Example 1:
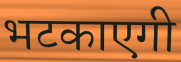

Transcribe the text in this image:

भटकाएगी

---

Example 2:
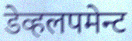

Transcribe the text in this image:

डेव्हलपमेन्ट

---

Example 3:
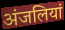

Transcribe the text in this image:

अंजलियां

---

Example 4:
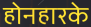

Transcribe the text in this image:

होनहारके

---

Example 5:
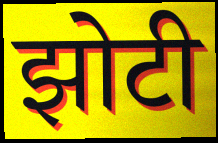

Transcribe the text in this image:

झोटी